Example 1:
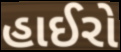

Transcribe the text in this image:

હાઈરો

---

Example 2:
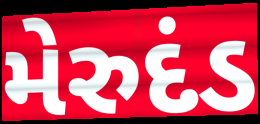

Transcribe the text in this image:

મેરુદંડ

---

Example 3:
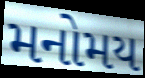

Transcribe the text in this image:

મનોમય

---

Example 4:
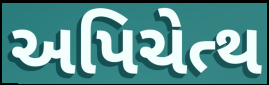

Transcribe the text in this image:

અપિચેત્થ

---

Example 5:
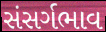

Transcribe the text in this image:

સંસર્ગભાવ